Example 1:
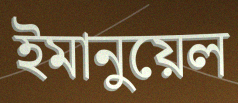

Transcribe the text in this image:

ইমানুয়েল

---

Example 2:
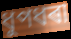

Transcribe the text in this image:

ধুপধৰা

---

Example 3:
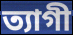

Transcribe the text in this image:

ত্যাগী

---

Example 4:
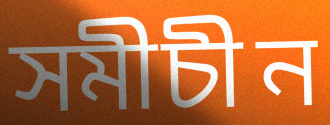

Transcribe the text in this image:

সমীচীন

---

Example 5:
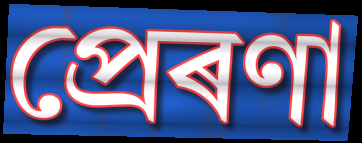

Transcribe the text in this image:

প্ৰেৰণা